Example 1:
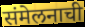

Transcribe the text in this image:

संमेलनाची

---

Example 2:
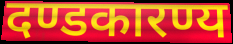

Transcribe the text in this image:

दण्डकारण्य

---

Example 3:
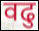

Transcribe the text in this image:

वढु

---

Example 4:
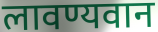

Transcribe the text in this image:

लावण्यवान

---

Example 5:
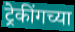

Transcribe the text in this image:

ट्रेकींगच्या